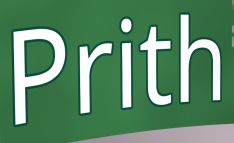
Prith